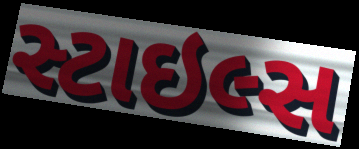
સ્ટાઇલ્સ